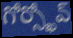
గోర్స్ఖోవ్